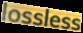
lossless